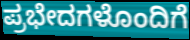
ಪ್ರಭೇದಗಳೊಂದಿಗೆ